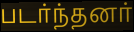
படர்ந்தனர்